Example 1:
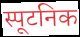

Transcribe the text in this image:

स्पूटनिक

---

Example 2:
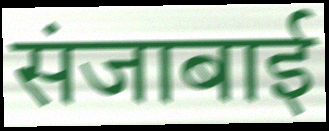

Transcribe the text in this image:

संजाबाई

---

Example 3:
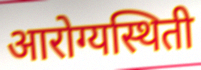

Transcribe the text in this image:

आरोग्यस्थिती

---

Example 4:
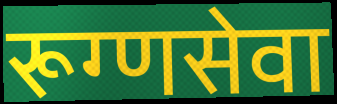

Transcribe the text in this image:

रूग्णसेवा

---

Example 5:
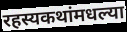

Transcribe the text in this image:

रहस्यकथांमधल्या